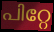
പിറ്റേ